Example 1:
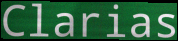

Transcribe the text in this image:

Clarias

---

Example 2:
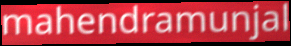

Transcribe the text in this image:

mahendramunjal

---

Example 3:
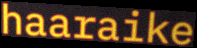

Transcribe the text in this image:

haaraike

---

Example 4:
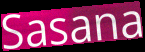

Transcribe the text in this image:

Sasana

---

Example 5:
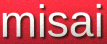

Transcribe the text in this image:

misai